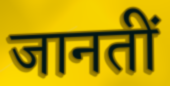
जानतीं